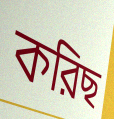
করিছ